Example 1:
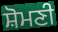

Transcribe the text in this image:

ਸ਼ੋਮਣੀ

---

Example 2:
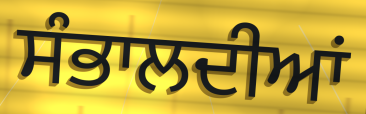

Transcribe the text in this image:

ਸੰਭਾਲਦੀਆਂ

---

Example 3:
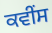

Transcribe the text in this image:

ਕਵੀਂਸ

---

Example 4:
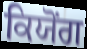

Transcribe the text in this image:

ਕਿਯੋਂਗ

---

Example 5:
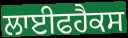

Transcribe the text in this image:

ਲਾਈਫਹੈਕਸ